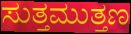
ಸುತ್ತಮುತ್ತಣ